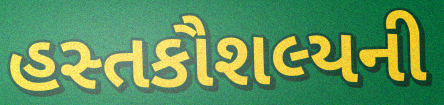
હસ્તકૌશલ્યની